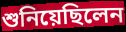
শুনিয়েছিলেন